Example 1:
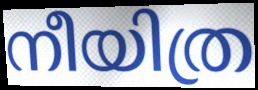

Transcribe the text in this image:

നീയിത്ര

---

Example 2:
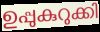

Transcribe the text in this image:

ഉപ്പുകുറുക്കി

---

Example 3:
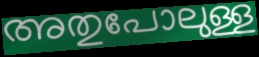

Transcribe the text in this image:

അതുപോലുള്ള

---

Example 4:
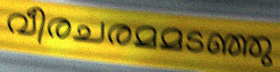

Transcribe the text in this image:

വീരചരമമടഞ്ഞു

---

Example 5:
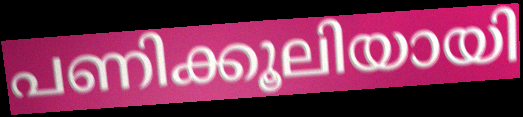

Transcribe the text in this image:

പണിക്കൂലിയായി